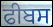
ਫੀਬਸ